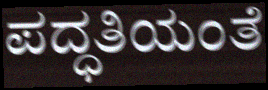
ಪದ್ಧತಿಯಂತೆ